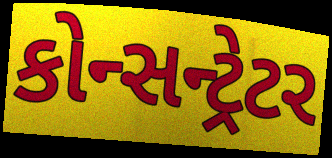
કોન્સન્ટ્રેટર